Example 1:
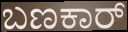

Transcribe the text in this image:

ಬಣಕಾರ್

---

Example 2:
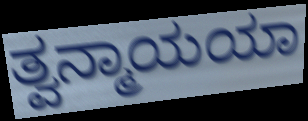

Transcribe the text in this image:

ತ್ವನ್ಮಾಯಯಾ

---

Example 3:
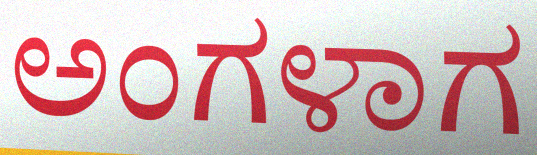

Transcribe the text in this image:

ಅಂಗಳಾಗ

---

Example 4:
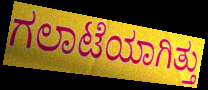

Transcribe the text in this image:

ಗಲಾಟೆಯಾಗಿತ್ತು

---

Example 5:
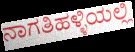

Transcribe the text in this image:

ನಾಗತಿಹಳ್ಳಿಯಲ್ಲಿ